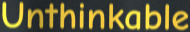
Unthinkable